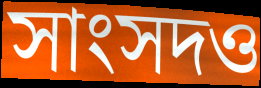
সাংসদও